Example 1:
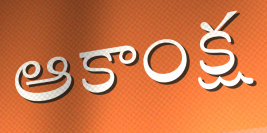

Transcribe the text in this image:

ఆకాంక్ష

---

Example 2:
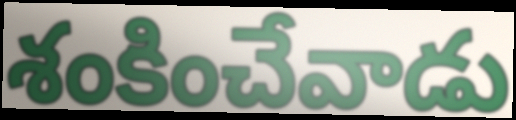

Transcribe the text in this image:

శంకించేవాడు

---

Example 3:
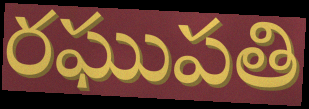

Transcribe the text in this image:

రఘుపతి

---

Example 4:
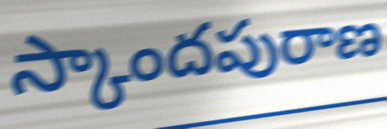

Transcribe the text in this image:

స్కాందపురాణ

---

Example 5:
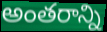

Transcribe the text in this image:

అంతరాన్ని